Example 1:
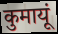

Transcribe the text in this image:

कुमायूं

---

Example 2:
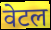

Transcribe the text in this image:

वेटल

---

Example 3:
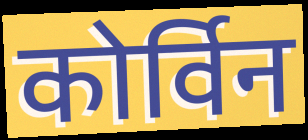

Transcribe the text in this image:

कोर्विन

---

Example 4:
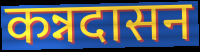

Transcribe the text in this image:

कन्नदासन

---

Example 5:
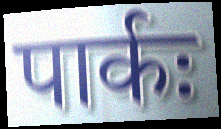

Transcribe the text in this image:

पार्कः